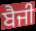
ਬੈਜੀ